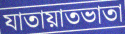
যাতায়াতভাতা